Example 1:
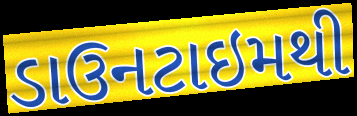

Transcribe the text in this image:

ડાઉનટાઇમથી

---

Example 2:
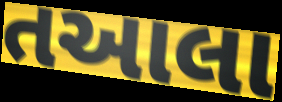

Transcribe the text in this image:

તઆલા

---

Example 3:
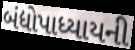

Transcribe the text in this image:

બંદ્યોપાધ્યાયની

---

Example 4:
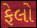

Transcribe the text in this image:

ફેલો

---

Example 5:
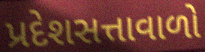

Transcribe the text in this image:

પ્રદેશસત્તાવાળો